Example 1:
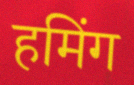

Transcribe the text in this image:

हमिंग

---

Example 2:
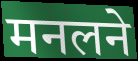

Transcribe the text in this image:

मनलने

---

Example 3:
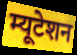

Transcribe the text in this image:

म्यूटेशन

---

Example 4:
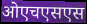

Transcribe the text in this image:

ओएचएसएस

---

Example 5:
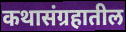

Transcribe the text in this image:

कथासंग्रहातील